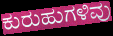
ಕುರುಹುಗಳಿವು